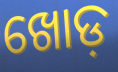
ଖୋଡ଼